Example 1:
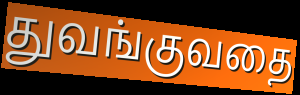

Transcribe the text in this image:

துவங்குவதை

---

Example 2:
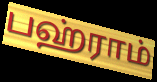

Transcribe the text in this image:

பஹ்ராம்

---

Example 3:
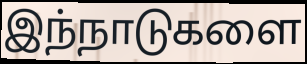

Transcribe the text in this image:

இந்நாடுகளை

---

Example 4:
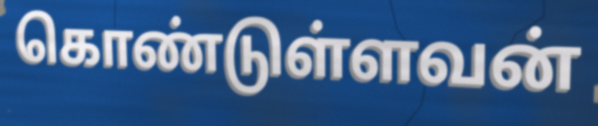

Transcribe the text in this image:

கொண்டுள்ளவன்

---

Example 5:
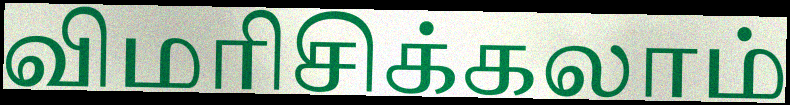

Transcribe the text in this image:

விமரிசிக்கலாம்